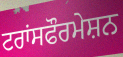
ਟਰਾਂਸਫੌਰਮੇਸ਼ਨ